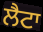
ਲੈਟਾ